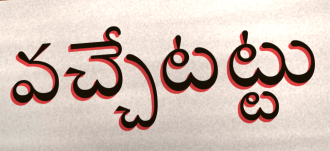
వచ్చేటట్టు